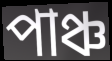
পাঞ্চ